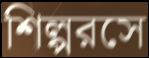
শিল্পরসে